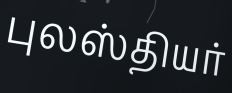
புலஸ்தியர்